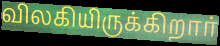
விலகியிருக்கிறார்